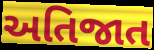
અતિજાત